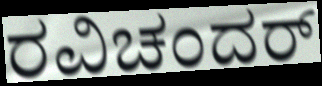
ರವಿಚಂದರ್